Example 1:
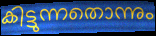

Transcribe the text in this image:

കിട്ടുന്നതൊന്നും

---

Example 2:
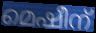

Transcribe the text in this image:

മെഷീന്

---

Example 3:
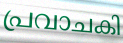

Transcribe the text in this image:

പ്രവാചകി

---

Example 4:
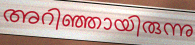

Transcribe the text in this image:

അറിഞ്ഞായിരുന്നു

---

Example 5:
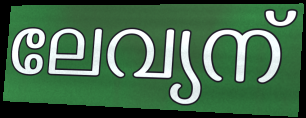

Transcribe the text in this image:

ലേവ്യന്